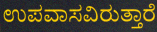
ಉಪವಾಸವಿರುತ್ತಾರೆ